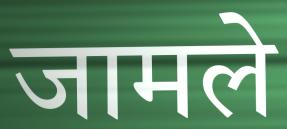
जामले